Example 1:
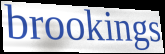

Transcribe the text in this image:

brookings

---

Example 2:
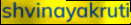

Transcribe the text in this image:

shvinayakruti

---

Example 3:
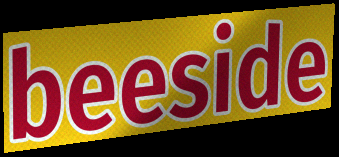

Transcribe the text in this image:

beeside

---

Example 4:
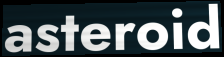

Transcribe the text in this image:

asteroid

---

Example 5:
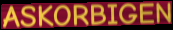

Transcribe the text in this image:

ASKORBIGEN